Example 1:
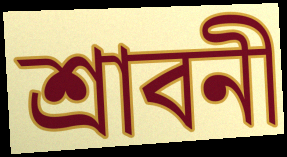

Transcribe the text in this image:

শ্রাবনী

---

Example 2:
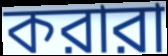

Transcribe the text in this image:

করারা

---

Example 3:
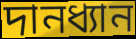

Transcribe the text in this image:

দানধ্যান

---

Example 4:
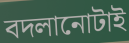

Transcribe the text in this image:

বদলানোটাই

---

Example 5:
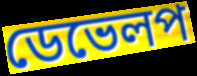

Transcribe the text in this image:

ডেভেলপ